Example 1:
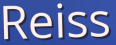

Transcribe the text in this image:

Reiss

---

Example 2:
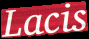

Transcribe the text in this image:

Lacis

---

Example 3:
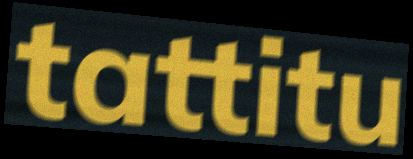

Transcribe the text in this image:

tattitu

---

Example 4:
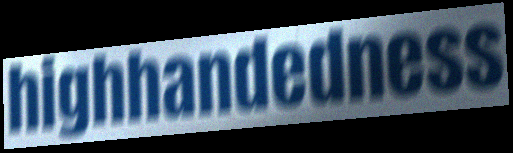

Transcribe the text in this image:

highhandedness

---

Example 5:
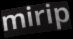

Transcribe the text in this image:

mirip